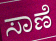
ಸಾಣೆ